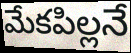
మేకపిల్లనే